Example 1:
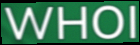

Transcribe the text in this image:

WHOI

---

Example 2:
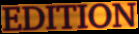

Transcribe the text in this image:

EDITION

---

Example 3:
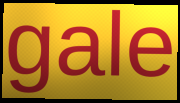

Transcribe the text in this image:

gale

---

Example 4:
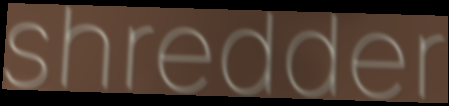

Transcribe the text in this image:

shredder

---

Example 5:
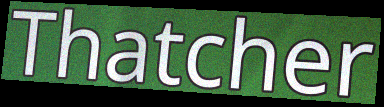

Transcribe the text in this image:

Thatcher